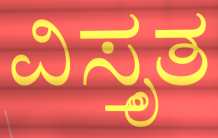
ವಿಸ್ತೃತ